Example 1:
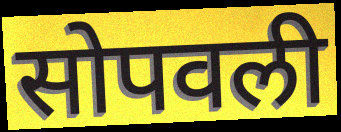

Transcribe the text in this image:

सोपवली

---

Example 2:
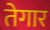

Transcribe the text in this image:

तेगार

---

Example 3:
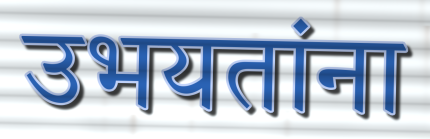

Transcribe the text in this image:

उभयतांना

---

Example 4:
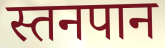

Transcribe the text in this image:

स्तनपान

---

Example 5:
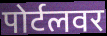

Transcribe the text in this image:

पोर्टलवर